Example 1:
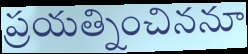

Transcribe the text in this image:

ప్రయత్నించిననూ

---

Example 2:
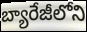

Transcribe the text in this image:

బ్యారేజీలోని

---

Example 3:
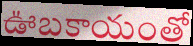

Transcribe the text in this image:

ఊబకాయంతో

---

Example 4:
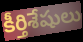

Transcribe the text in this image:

కీర్తిశేషులు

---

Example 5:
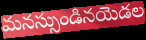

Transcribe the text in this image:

మనస్సుండినయెడల